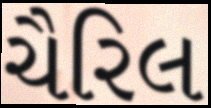
ચૈરિલ